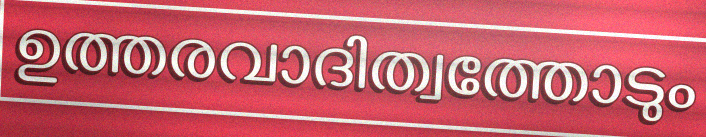
ഉത്തരവാദിത്വത്തോടും